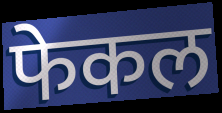
फेकल